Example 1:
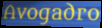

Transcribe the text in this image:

Avogadro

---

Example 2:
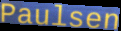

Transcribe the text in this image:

Paulsen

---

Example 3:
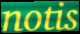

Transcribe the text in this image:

notis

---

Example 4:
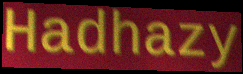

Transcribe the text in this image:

Hadhazy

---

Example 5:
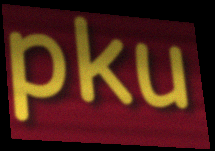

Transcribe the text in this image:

pku